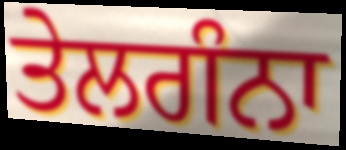
ਤੇਲਗੰਨਾ